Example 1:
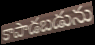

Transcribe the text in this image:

కాపాడబడును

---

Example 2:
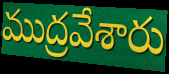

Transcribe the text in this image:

ముద్రవేశారు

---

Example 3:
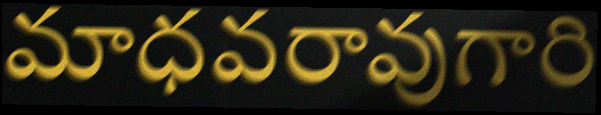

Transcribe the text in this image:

మాధవరావుగారి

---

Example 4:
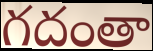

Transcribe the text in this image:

గదంతా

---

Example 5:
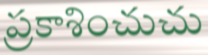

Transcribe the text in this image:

ప్రకాశించుచు